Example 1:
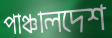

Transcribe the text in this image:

পাঞ্চালদেশ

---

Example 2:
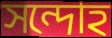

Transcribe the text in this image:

সন্দোহ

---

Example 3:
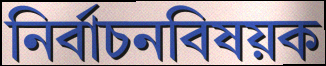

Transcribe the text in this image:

নির্বাচনবিষয়ক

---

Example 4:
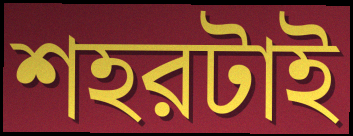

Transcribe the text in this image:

শহরটাই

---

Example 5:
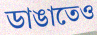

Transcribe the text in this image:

ডাঙাতেও